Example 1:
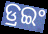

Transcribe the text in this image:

ଡ୍ରଇଂ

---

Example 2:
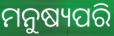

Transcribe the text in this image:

ମନୁଷ୍ୟପରି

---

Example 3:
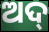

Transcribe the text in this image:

ଅଦ୍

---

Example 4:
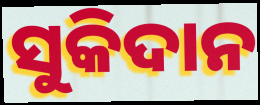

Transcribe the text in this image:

ସୁକିଦାନ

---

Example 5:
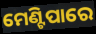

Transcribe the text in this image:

ମେଣ୍ଟିପାରେ